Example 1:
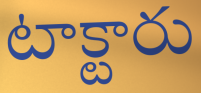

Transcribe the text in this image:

టాక్టారు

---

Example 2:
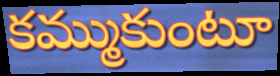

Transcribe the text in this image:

కమ్ముకుంటూ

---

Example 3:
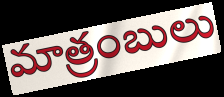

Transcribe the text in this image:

మాత్రంబులు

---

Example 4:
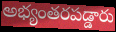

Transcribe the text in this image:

అభ్యంతరపడ్డారు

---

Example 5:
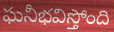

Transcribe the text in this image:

ఘనీభవిస్తోంది